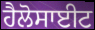
ਹੈਲੋਸਾਈਟ